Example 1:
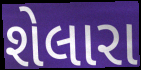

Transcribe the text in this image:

શેલારા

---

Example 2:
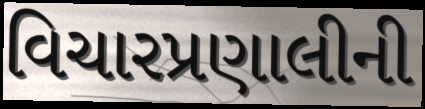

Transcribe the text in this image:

વિચારપ્રણાલીની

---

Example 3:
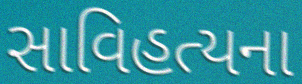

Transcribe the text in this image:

સાવિહત્યના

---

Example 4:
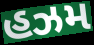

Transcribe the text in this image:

હઝમ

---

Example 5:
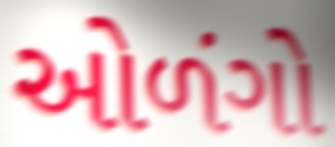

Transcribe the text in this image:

ઓળંગો